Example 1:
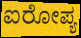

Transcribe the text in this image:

ಐರೋಪ್ಯ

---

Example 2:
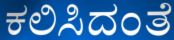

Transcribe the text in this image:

ಕಲಿಸಿದಂತೆ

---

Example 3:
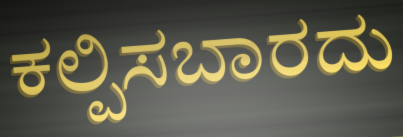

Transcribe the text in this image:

ಕಲ್ಪಿಸಬಾರದು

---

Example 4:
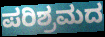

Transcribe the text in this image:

ಪರಿಶ್ರಮದ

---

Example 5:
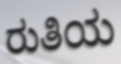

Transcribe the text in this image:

ರುತಿಯ